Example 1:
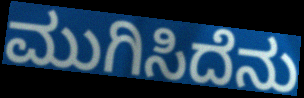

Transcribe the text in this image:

ಮುಗಿಸಿದೆನು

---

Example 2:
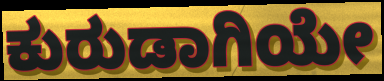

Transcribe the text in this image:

ಕುರುಡಾಗಿಯೇ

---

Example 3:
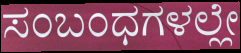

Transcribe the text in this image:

ಸಂಬಂಧಗಳಲ್ಲೇ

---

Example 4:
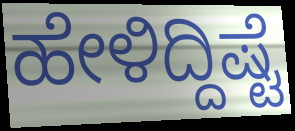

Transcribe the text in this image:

ಹೇಳಿದ್ದಿಷ್ಟೆ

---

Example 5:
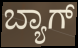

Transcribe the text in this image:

ಬ್ಯಾಗ್